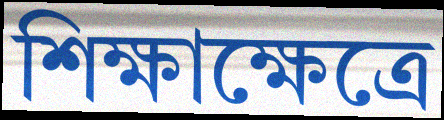
শিক্ষাক্ষেত্রে